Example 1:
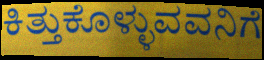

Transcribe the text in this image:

ಕಿತ್ತುಕೊಳ್ಳುವವನಿಗೆ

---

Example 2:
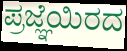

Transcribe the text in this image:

ಪ್ರಜ್ಞೆಯಿರದ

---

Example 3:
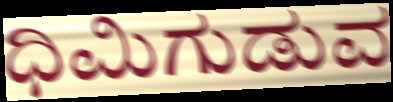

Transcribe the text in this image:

ಧಿಮಿಗುಡುವ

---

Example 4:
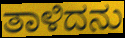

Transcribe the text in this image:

ತಾಳಿದನು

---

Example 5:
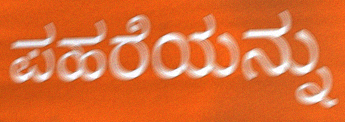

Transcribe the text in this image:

ಪಹರೆಯನ್ನು